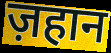
ज़हान